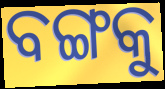
ବଙ୍ଗକୁ